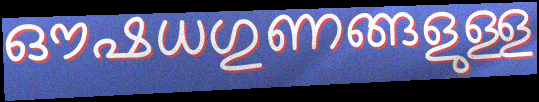
ഔഷധഗുണങ്ങളുള്ള